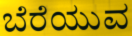
ಬೆರೆಯುವ